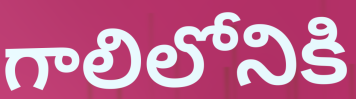
గాలిలోనికి